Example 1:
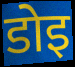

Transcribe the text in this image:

डोइ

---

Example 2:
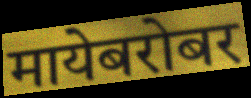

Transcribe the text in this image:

मायेबरोबर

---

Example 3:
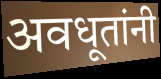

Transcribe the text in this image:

अवधूतांनी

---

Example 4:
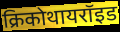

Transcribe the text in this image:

क्रिकोथायरॉइड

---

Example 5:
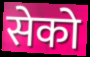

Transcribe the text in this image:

सेको